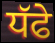
ਧੱਫੇ